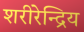
शरीरेन्द्रिय